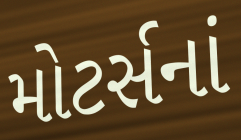
મોટર્સનાં